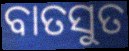
ବାତସୁତ